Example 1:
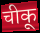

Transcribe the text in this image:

चीकू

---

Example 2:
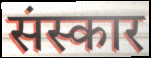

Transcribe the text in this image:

संस्‍कार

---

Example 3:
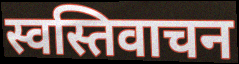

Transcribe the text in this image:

स्वस्तिवाचन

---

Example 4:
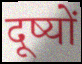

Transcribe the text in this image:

दूष्यों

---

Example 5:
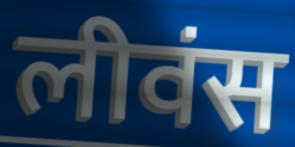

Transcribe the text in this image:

लीवंस